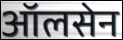
ऑलसेन